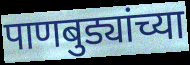
पाणबुड्यांच्या